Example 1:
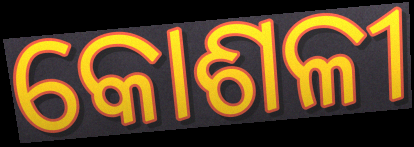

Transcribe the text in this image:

କୋଶଳୀ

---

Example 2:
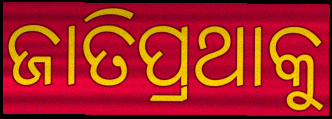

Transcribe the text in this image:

ଜାତିପ୍ରଥାକୁ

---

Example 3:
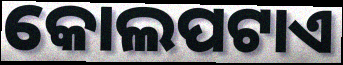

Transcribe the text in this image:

କୋଲପଟାଏ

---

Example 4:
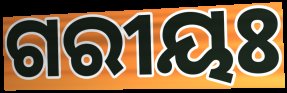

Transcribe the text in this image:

ଗରୀୟଃ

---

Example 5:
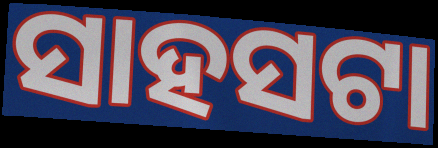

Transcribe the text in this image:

ସାହସଟା